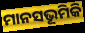
ମାନସଭୂମିକି